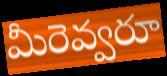
మీరెవ్వరూ